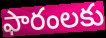
ఫారంలకు